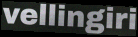
vellingiri